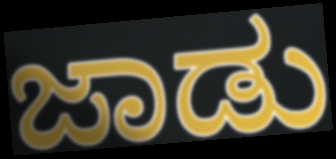
ಜಾಡು